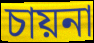
চায়না